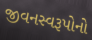
જીવનસ્વરૂપોનો